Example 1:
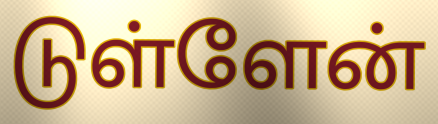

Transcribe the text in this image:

டுள்ளேன்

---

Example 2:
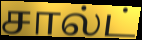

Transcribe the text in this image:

சால்ட்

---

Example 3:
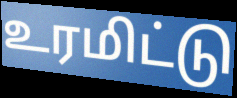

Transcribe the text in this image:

உரமிட்டு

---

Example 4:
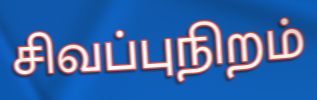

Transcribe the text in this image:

சிவப்புநிறம்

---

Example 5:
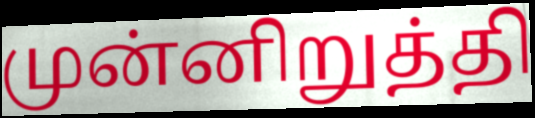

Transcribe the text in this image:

முன்னிறுத்தி